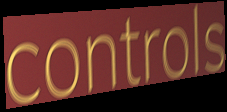
controls